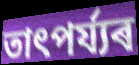
তাৎপৰ্য্যৰ